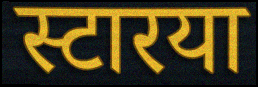
स्टारया